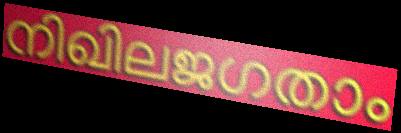
നിഖിലജഗതാം